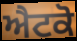
ਐਟਕੋ